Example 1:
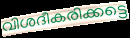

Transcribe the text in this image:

വിശദീകരിക്കട്ടെ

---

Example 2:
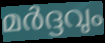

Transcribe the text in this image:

മർദ്ദവും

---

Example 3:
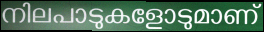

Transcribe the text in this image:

നിലപാടുകളോടുമാണ്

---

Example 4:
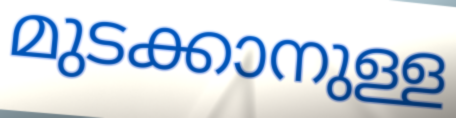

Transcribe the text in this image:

മുടക്കാനുള്ള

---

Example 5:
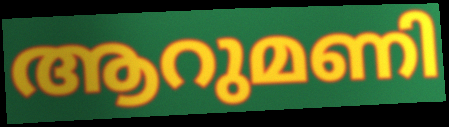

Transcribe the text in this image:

ആറുമണി